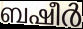
ബഷീർ